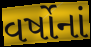
વર્ષોનાં